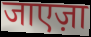
जाएज़ा